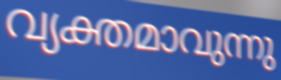
വ്യക്തമാവുന്നു